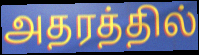
அதரத்தில்